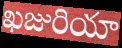
ఖజురియా